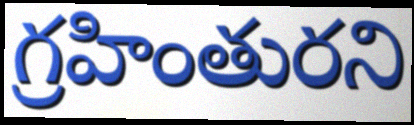
గ్రహింతురని